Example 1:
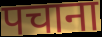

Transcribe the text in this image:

पचाना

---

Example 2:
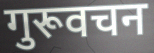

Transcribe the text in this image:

गुरूवचन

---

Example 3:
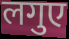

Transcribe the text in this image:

लगुए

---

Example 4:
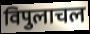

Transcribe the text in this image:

विपुलाचल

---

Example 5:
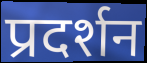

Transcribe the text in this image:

प्रदर्शन